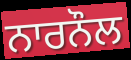
ਨਾਰਨੌਲ